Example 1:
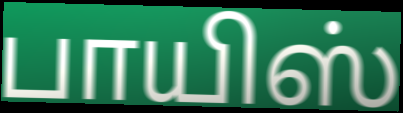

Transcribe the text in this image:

பாயிஸ்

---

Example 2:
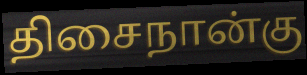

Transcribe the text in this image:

திசைநான்கு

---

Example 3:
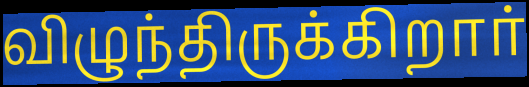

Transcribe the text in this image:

விழுந்திருக்கிறார்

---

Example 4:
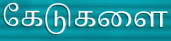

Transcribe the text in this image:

கேடுகளை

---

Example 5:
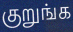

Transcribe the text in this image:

குறுங்க